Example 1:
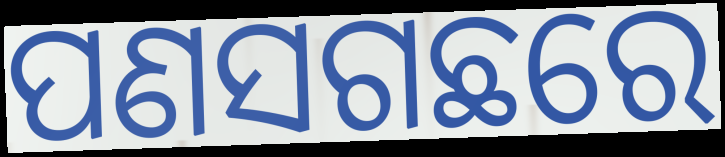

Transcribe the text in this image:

ପଣସଗଛରେ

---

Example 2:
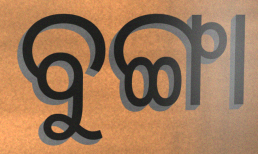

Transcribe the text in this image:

ବୁଙ୍ଗା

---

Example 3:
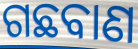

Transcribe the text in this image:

ଗଛବାଣ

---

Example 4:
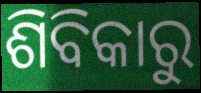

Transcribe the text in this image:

ଶିବିକାରୁ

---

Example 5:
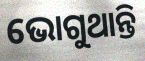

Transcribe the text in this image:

ଭୋଗୁଥାନ୍ତି